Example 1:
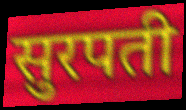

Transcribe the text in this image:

सुरपती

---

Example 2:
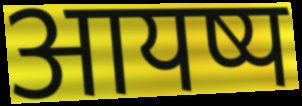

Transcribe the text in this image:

आयष्य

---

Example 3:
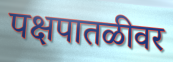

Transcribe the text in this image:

पक्षपातळीवर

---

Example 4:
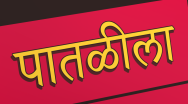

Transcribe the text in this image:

पातळीला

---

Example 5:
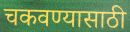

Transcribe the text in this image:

चकवण्यासाठी